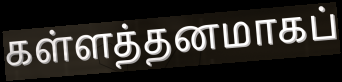
கள்ளத்தனமாகப்